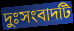
দুঃসংবাদটি